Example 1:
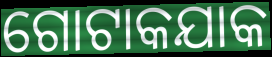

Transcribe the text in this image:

ଗୋଟାକଯାକ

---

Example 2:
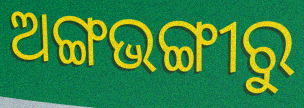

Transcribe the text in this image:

ଅଙ୍ଗଭଙ୍ଗୀରୁ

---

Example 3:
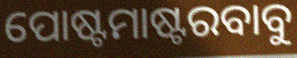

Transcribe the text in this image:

ପୋଷ୍ଟମାଷ୍ଟରବାବୁ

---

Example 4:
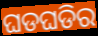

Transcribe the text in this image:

ଘଡଘଡିର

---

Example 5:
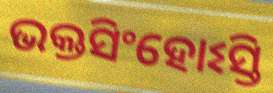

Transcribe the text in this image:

ଭକ୍ତସିଂହୋଽସ୍ତି